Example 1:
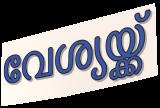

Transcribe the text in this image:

വേശ്യയ്ക്ക്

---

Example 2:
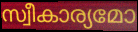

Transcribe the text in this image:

സ്വീകാര്യമോ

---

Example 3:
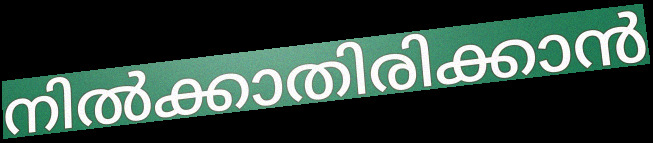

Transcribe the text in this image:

നിൽക്കാതിരിക്കാൻ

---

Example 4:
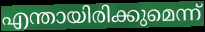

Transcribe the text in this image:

എന്തായിരിക്കുമെന്ന്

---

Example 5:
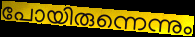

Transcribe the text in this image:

പോയിരുന്നെന്നും